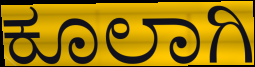
ಕೂಲಾಗಿ